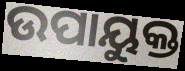
ଉପାୟୁକ୍ତ